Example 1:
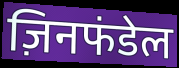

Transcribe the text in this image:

ज़िनफंडेल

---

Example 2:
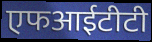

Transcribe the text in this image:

एफआईटीटी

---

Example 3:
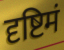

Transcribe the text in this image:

दृष्टिमं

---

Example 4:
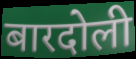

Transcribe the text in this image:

बारदोली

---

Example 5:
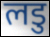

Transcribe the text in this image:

लडु